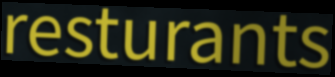
resturants